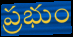
ప్రభుం